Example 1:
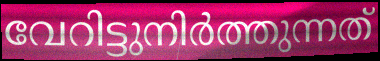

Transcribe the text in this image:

വേറിട്ടുനിർത്തുന്നത്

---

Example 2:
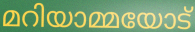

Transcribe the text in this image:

മറിയാമ്മയോട്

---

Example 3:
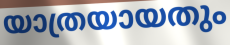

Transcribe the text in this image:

യാത്രയായതും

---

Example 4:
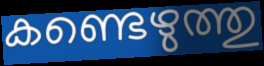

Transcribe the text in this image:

കണ്ടെഴുത്തു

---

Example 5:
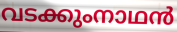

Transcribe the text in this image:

വടക്കുംനാഥൻ